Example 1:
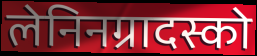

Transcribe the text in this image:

लेनिनग्रादस्को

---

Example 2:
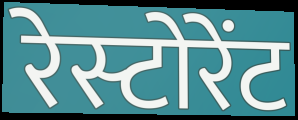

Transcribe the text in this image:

रेस्‍टोरेंट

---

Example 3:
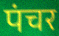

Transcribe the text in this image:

पंचर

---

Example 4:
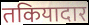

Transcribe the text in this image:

तकियादार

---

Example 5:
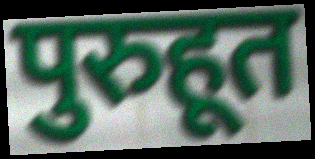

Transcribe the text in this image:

पुरुहूत